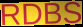
RDBS